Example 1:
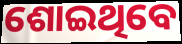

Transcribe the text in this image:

ଶୋଇଥିବେ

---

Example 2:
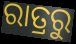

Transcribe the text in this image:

ରାତ୍ରରୁ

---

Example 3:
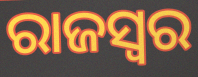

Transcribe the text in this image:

ରାଜସ୍ୱର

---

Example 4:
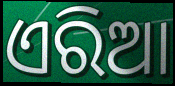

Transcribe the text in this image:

ଏରିଆ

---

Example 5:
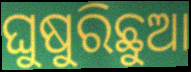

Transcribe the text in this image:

ଘୁଷୁରିଛୁଆ